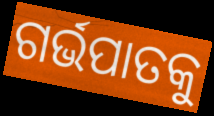
ଗର୍ଭପାତକୁ